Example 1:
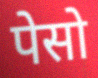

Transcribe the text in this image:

पेसो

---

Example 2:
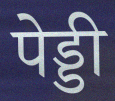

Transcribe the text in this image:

पेड्डी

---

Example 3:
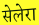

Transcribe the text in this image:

सेलेरा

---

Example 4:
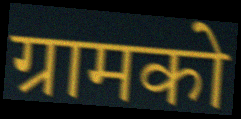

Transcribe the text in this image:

ग्रामको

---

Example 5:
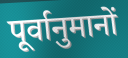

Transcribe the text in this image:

पूर्वानुमानों